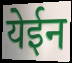
येईन